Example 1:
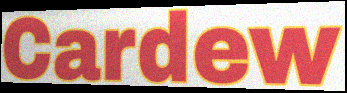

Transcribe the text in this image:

Cardew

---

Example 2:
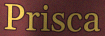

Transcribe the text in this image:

Prisca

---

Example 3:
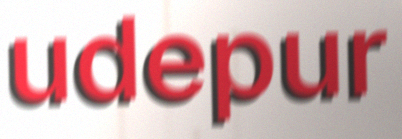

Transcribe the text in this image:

udepur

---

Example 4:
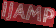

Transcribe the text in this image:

IJAMP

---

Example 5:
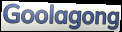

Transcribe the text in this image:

Goolagong